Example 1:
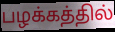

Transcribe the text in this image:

பழக்கத்தில்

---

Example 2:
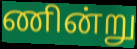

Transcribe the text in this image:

ணின்று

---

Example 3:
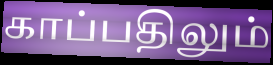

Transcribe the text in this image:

காப்பதிலும்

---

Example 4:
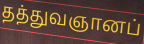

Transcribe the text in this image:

தத்துவஞானப்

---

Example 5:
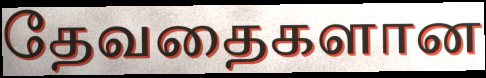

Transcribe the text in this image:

தேவதைகளான